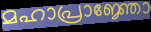
മഹാപ്രാജ്ഞോ